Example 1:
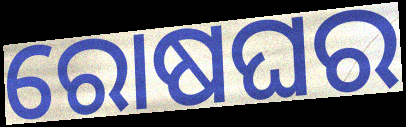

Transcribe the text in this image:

ରୋଷଘର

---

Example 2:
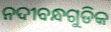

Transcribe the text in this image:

ନଦୀବନ୍ଧଗୁଡିକ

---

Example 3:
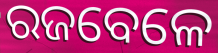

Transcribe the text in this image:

ରଜବେଳେ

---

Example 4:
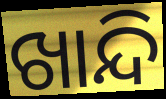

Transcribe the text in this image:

ଖାନ୍ଦି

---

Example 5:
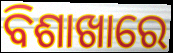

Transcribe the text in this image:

ବିଶାଖାରେ